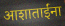
आशाताईंना